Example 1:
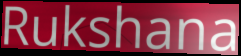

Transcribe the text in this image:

Rukshana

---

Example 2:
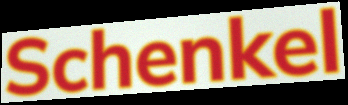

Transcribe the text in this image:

Schenkel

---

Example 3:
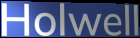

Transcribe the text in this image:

Holwell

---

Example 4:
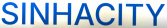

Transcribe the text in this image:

SINHACITY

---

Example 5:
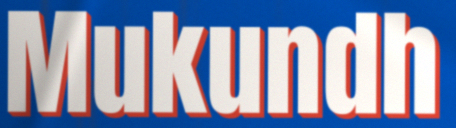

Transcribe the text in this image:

Mukundh